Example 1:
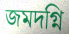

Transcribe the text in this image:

জমদগ্নি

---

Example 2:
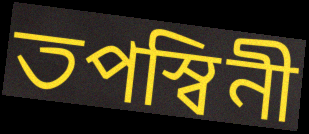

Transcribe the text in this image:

তপস্বিনী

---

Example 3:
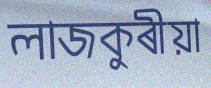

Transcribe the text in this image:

লাজকুৰীয়া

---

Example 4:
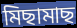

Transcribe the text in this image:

মিছামাছ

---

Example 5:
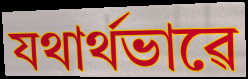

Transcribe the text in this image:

যথাৰ্থভাৱে